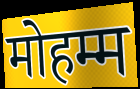
मोहम्म